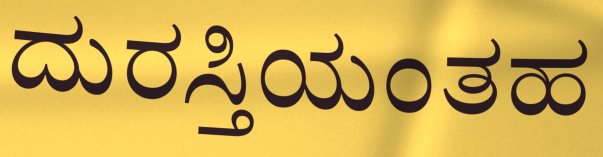
ದುರಸ್ತಿಯಂತಹ